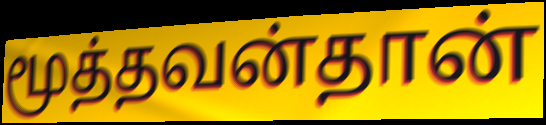
மூத்தவன்தான்